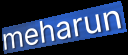
meharun